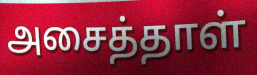
அசைத்தாள்